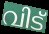
വിട്